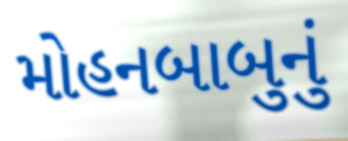
મોહનબાબુનું